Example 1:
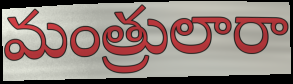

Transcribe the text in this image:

మంత్రులారా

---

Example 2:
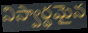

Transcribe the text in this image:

నిస్వార్థమైన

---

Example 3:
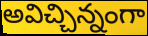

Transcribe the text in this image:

అవిచ్చిన్నంగా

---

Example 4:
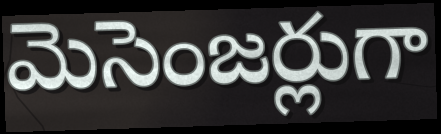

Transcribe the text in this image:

మెసెంజర్లుగా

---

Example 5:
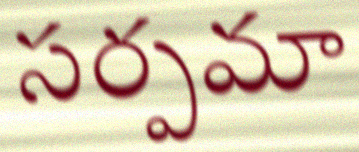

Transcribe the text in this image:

సర్పమా